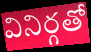
వినిర్గతో